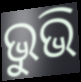
ଭୁଭି